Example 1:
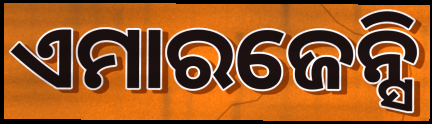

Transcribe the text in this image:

ଏମାରଜେନ୍ସି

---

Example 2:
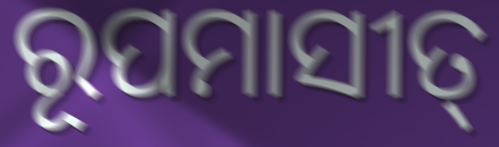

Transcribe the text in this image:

ରୂପମାସୀତ୍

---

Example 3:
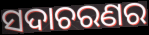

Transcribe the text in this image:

ସଦାଚରଣର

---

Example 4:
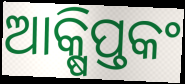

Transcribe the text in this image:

ଆକ୍ଷିପ୍ତକଂ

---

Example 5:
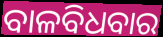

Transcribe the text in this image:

ବାଳବିଧବାର